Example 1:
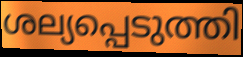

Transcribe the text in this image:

ശല്യപ്പെടുത്തി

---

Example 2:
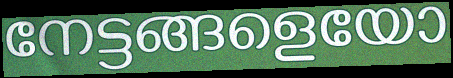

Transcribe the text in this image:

നേട്ടങ്ങളെയോ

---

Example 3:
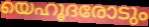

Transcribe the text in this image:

യെഹൂദരോടും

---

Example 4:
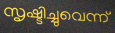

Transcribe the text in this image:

സൃഷ്ടിച്ചുവെന്ന്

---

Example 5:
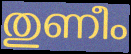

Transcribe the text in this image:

തുണീം